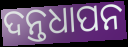
ଦନ୍ତଧାପନ